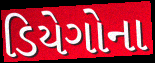
ડિયેગોના